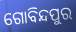
ଗୋବିନ୍ଦପୁର